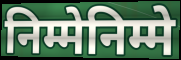
निम्मेनिम्मे